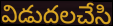
విడుదలచేసి